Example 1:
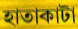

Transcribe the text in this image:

হাতাকাটা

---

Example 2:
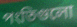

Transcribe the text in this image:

পংতিগুলো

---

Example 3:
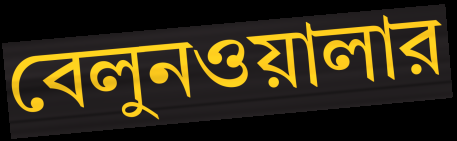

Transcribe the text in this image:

বেলুনওয়ালার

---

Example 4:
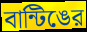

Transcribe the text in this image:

বান্টিঙের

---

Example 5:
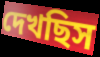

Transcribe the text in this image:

দেখছিস